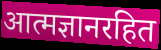
आत्मज्ञानरहित